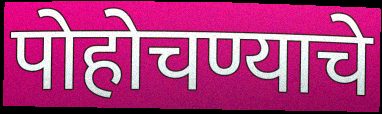
पोहोचण्याचे